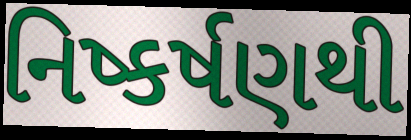
નિષ્કર્ષણથી